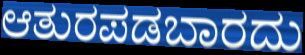
ಆತುರಪಡಬಾರದು